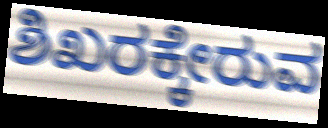
ಶಿಖರಕ್ಕೇರುವ